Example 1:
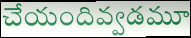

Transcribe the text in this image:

చేయందివ్వడమూ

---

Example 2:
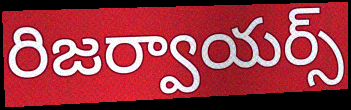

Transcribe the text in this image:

రిజర్వాయర్స్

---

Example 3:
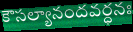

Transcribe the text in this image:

కౌసల్యానందవర్ధనః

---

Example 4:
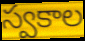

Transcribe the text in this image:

స్వకాల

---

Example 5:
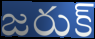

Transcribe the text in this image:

జరుక్